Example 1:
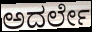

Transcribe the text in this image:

ಅದರ್ಲೇ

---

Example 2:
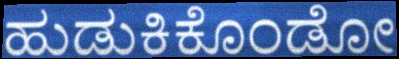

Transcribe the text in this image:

ಹುಡುಕಿಕೊಂಡೋ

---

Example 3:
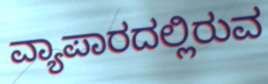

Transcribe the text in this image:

ವ್ಯಾಪಾರದಲ್ಲಿರುವ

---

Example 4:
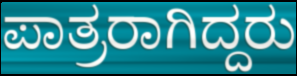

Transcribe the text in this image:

ಪಾತ್ರರಾಗಿದ್ದರು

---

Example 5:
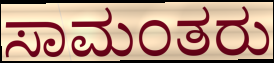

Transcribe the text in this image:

ಸಾಮಂತರು